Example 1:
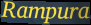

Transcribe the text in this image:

Rampura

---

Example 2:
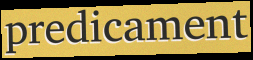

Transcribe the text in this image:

predicament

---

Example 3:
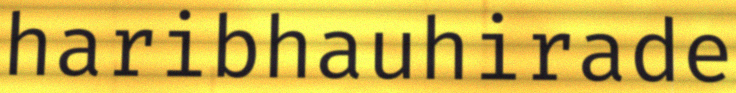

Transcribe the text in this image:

haribhauhirade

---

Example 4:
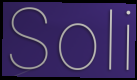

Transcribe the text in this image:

Soli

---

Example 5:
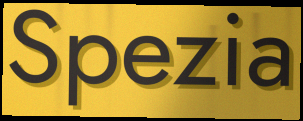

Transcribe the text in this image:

Spezia